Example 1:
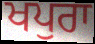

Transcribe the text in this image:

ਖਪੁਰਾ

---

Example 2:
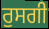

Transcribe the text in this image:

ਰੁਸਗੀ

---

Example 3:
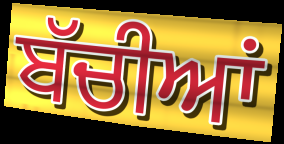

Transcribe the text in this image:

ਬੱਚੀਆਂ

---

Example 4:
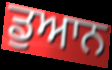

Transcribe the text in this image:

ਡੁਆਨ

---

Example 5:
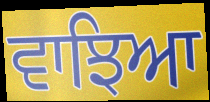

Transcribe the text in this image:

ਵਾਝਿਆ